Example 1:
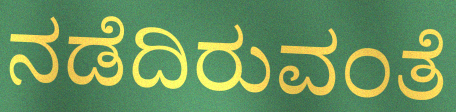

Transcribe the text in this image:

ನಡೆದಿರುವಂತೆ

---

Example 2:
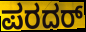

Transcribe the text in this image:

ಪರದರ್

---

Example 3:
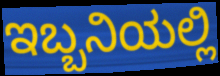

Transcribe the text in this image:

ಇಬ್ಬನಿಯಲ್ಲಿ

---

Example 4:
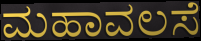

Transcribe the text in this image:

ಮಹಾವಲಸೆ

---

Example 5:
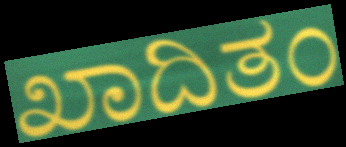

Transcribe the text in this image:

ಖಾದಿತಂ